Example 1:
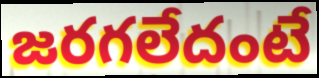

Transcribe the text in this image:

జరగలేదంటే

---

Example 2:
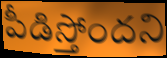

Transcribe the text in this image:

పీడిస్తోందని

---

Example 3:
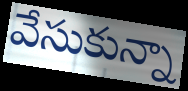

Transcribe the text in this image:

వేసుకున్నా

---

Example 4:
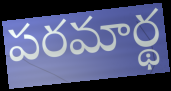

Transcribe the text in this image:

పరమార్థ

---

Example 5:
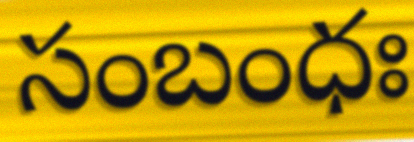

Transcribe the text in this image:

సంబంధః